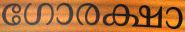
ഗോരക്ഷാ